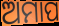
ଅମାପ